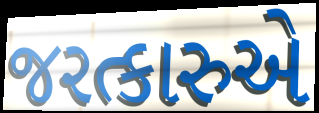
જરત્કારુએ